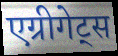
एग्रीगेट्स